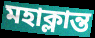
মহাক্লান্ত